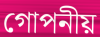
গোপনীয়